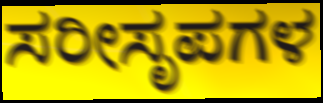
ಸರೀಸೃಪಗಳ